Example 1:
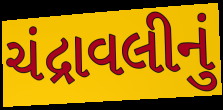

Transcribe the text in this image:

ચંદ્રાવલીનું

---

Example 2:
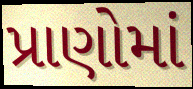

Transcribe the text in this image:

પ્રાણોમાં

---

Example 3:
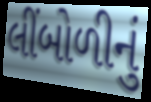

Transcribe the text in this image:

લીંબોળીનું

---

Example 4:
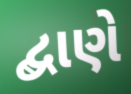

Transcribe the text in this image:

દ્બાણે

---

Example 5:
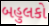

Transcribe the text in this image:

બહુલકો